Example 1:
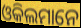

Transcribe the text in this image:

ଓକିଲମାନେ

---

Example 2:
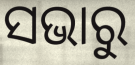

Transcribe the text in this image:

ସଭାରୁ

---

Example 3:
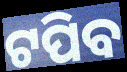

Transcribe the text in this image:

ଟପିବ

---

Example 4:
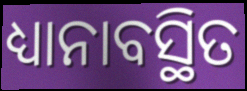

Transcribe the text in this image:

ଧ୍ୟାନାବସ୍ଥିତ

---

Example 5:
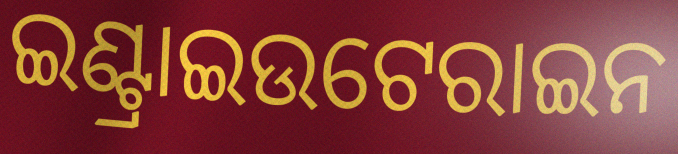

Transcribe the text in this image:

ଇଣ୍ଟ୍ରାଇଉଟେରାଇନ